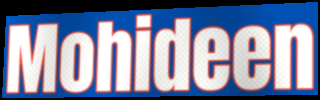
Mohideen